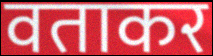
वताकर